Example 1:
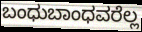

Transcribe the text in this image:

ಬಂಧುಬಾಂಧವರೆಲ್ಲ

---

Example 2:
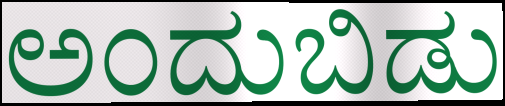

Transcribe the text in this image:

ಅಂದುಬಿಡು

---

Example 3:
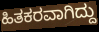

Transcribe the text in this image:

ಹಿತಕರವಾಗಿದ್ದು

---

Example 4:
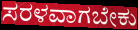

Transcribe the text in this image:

ಸರಳವಾಗಬೇಕು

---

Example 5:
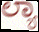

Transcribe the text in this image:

ಲ್ಯಾ